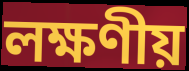
লক্ষণীয়